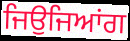
ਜਿਉਜਿਆਂਗ